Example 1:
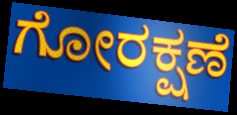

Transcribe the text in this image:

ಗೋರಕ್ಷಣೆ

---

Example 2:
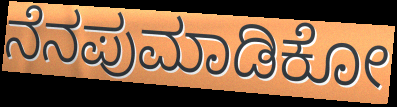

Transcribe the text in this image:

ನೆನಪುಮಾಡಿಕೋ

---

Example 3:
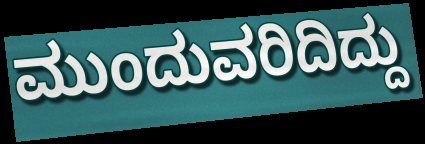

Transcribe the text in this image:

ಮುಂದುವರಿದಿದ್ದು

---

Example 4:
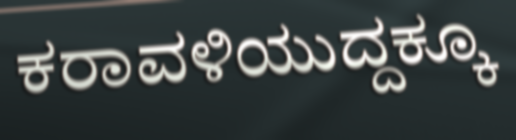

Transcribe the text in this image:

ಕರಾವಳಿಯುದ್ದಕ್ಕೂ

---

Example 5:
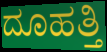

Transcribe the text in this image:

ದೂಹತ್ತಿ